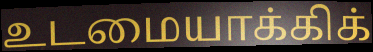
உடமையாக்கிக்